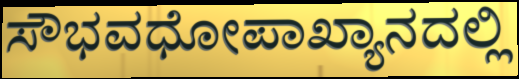
ಸೌಭವಧೋಪಾಖ್ಯಾನದಲ್ಲಿ